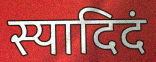
स्यादिदं